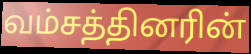
வம்சத்தினரின்